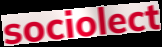
sociolect